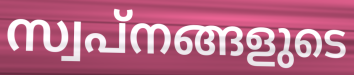
സ്വപ്നങ്ങളുടെ